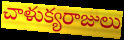
చాళుక్యరాజులు